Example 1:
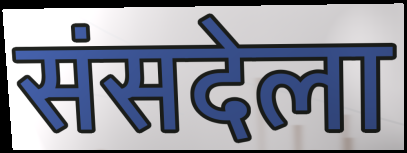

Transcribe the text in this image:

संसदेला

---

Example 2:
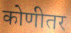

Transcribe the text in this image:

कोणीतर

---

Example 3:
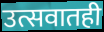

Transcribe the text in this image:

उत्सवातही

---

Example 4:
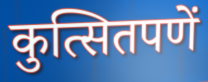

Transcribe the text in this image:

कुत्सितपणें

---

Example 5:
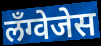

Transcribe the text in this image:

लँग्वेजेस